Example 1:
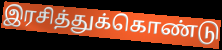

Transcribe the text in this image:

இரசித்துக்கொண்டு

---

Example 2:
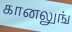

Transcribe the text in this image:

கானலுங்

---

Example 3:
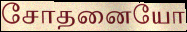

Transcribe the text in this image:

சோதனையோ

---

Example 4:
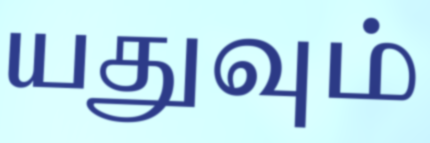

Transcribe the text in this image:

யதுவும்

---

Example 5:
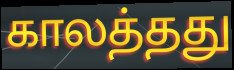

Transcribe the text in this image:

காலத்தது